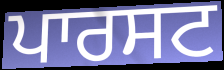
ਪਾਰਸਟ